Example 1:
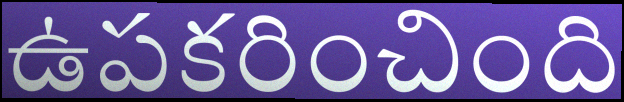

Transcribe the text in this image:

ఉపకరించింది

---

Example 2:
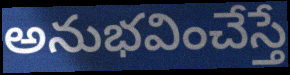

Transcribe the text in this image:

అనుభవించేస్తే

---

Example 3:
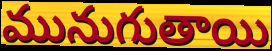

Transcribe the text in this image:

మునుగుతాయి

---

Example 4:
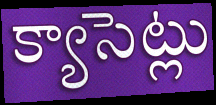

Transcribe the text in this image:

క్యాసెట్లు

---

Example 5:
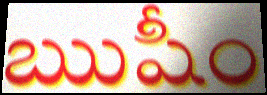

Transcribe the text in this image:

ఋషీం